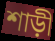
শাড়ী